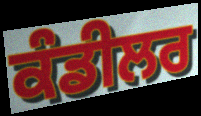
ਕੰਡੀਲਰ